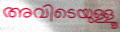
അവിടെയുള്ളൂ